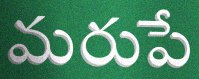
మరుపే